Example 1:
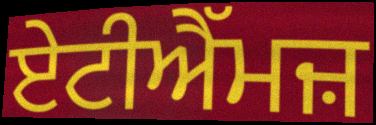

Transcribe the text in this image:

ਏਟੀਐੱਮਜ਼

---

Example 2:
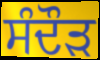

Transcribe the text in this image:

ਸੰਦੌੜ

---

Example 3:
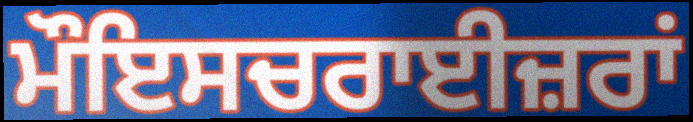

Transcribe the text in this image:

ਮੌਇਸਚਰਾਈਜ਼ਰਾਂ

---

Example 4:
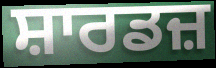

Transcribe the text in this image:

ਸ਼ਾਰਡਜ਼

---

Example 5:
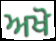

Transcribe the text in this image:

ਅਖੋ